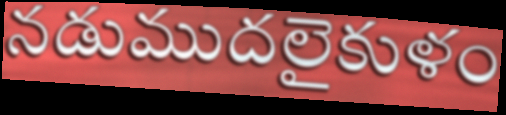
నడుముదలైకుళం